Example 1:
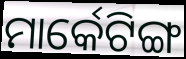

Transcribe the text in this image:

ମାର୍କେଟିଙ୍ଗ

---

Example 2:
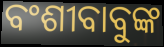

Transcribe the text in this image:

ବଂଶୀବାବୁଙ୍କ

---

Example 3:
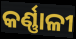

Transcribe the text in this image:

କର୍ଣ୍ଣାଳୀ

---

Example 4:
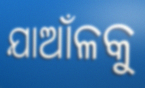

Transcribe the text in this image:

ଯାଆଁଳକୁ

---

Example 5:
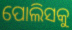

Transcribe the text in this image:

ପୋଲିସକୁ